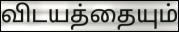
விடயத்தையும்